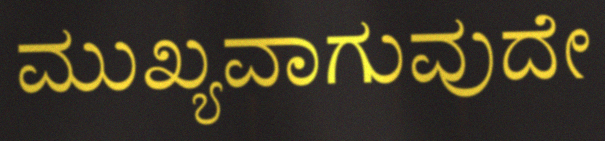
ಮುಖ್ಯವಾಗುವುದೇ